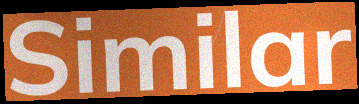
Similar